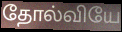
தோல்வியே